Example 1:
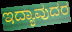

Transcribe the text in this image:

ಇದ್ಯಾವುದರ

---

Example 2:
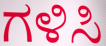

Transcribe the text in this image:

ಗಳಿಸಿ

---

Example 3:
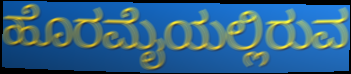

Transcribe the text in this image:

ಹೊರಮೈಯಲ್ಲಿರುವ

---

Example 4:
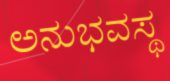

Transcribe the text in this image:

ಅನುಭವಸ್ಥ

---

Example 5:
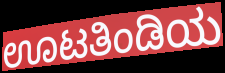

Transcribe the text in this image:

ಊಟತಿಂಡಿಯ